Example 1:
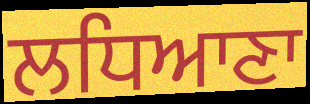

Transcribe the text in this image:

ਲਧਿਆਣਾ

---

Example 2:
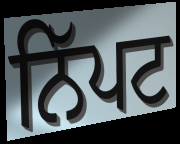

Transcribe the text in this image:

ਨਿੱਪਟ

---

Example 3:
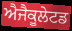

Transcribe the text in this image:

ਐਜੈਕੂਲੇਟਡ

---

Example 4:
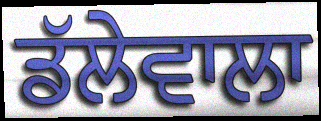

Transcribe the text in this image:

ਡੱਲੇਵਾਲਾ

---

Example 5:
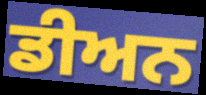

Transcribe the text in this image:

ਡੀਅਨ